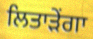
ਲਿਤਾੜੇਂਗਾ